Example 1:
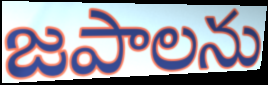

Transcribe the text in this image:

జపాలను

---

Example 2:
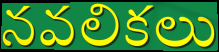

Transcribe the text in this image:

నవలికలు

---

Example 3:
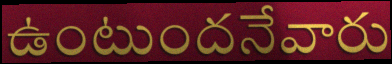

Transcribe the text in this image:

ఉంటుందనేవారు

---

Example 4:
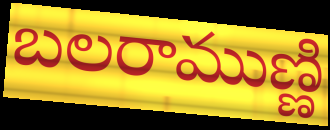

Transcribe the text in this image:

బలరాముణ్ణి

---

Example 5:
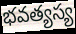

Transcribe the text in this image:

భవత్యస్య